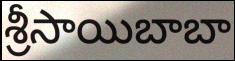
శ్రీసాయిబాబా